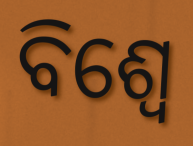
ବିଶ୍ଵେ